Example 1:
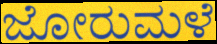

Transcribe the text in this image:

ಜೋರುಮಳೆ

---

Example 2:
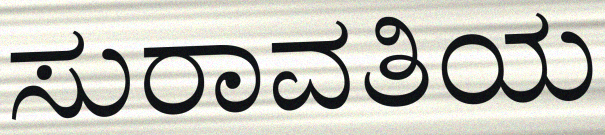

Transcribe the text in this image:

ಸುರಾವತಿಯ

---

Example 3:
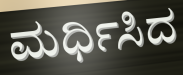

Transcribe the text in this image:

ಮರ್ಧಿಸಿದ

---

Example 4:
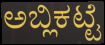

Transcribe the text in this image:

ಅಬ್ಲಿಕಟ್ಟೆ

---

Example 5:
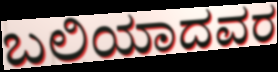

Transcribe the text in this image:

ಬಲಿಯಾದವರ